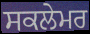
ਸਕਲੇਮਰ